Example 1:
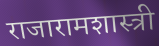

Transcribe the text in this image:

राजारामशास्त्री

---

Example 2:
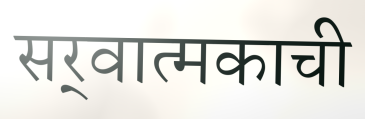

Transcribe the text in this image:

सर्वात्मकाची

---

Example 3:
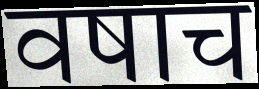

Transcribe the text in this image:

वषाच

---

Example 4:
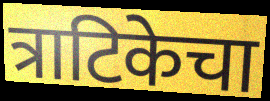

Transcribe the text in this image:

त्राटिकेचा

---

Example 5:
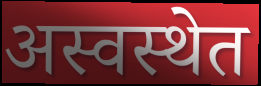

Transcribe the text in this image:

अस्वस्थेत